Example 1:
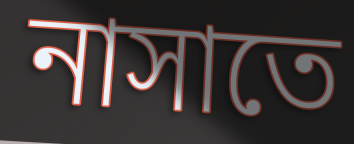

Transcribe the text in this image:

নাসাতে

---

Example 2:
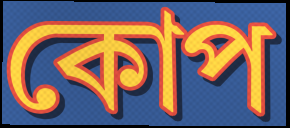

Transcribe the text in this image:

কোপ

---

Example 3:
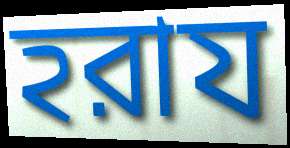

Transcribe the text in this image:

হরায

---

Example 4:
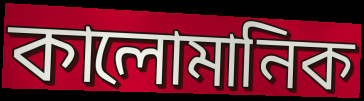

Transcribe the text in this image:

কালোমানিক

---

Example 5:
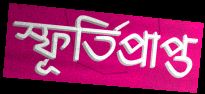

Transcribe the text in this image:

স্ফূর্তিপ্রাপ্ত